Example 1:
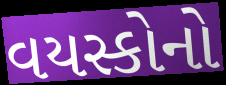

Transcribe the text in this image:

વયસ્કોનો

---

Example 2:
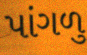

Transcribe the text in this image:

પાંગળુ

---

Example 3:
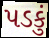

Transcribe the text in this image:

પડકું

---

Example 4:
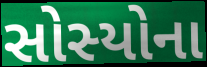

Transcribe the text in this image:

સોસ્યોના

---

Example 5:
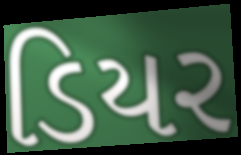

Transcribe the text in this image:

ડિયર